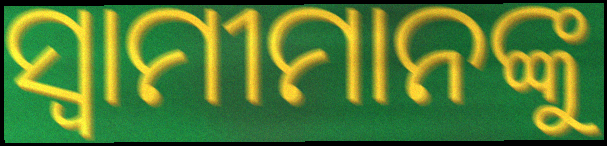
ସ୍ବାମୀମାନଙ୍କୁ